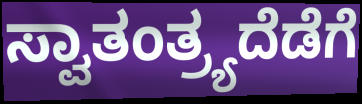
ಸ್ವಾತಂತ್ರ್ಯದೆಡೆಗೆ